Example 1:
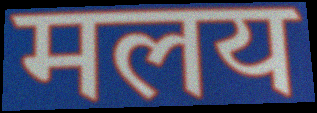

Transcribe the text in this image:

मलय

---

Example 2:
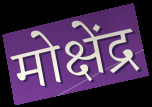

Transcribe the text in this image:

मोक्षेंद्र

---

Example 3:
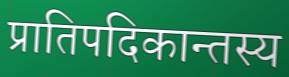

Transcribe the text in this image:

प्रातिपदिकान्तस्य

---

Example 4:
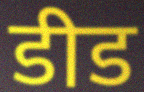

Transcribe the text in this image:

डीड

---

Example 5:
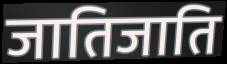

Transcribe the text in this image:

जातिजाति